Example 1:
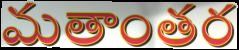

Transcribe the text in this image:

మతాంతర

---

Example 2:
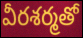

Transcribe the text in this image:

వీరశర్మతో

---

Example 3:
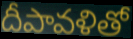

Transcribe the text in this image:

దీపావళితో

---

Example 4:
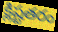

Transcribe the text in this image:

క్లిష్టతరం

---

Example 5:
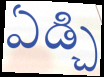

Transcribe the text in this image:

ఏడ్చి